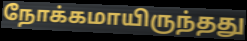
நோக்கமாயிருந்தது